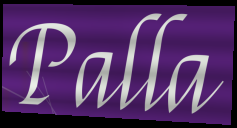
Palla